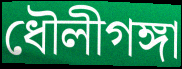
ধৌলীগঙ্গা